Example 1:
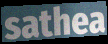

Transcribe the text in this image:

sathea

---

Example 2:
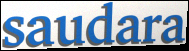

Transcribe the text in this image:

saudara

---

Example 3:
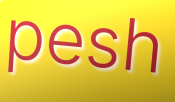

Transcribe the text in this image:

pesh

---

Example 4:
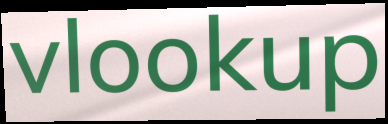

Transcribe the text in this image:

vlookup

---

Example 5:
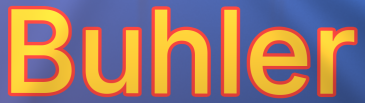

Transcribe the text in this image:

Buhler